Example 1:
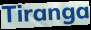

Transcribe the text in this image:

Tiranga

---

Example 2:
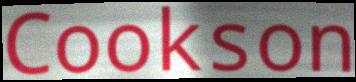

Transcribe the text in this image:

Cookson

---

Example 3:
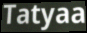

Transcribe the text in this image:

Tatyaa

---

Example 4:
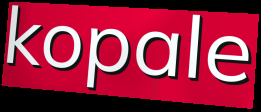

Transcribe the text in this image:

kopale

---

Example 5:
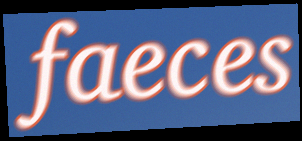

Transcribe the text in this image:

faeces